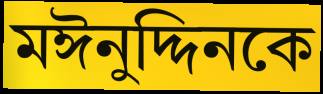
মঈনুদ্দিনকে